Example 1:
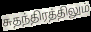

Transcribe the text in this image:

சுதந்திரத்திலும்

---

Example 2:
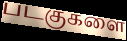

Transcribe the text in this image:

படகுகளை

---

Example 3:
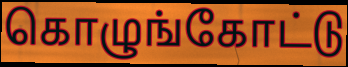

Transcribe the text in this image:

கொழுங்கோட்டு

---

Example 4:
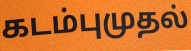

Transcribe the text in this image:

கடம்புமுதல்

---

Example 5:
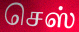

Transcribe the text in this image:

செஸ்